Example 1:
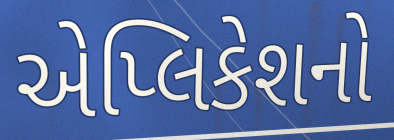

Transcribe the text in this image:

એપ્લિકેશનો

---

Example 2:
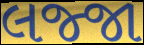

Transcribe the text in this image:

લજ્જા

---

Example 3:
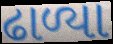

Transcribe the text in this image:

ઢાળ્યા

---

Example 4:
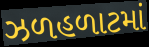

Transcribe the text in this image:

ઝળહળાટમાં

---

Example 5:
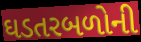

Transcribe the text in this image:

ઘડતરબળોની